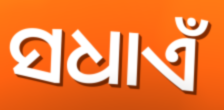
ସଧାଏଁ